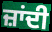
ਜ਼ਾਂਦੀ